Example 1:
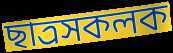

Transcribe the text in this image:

ছাত্ৰসকলক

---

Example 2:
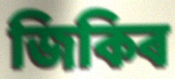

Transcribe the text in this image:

জিকিৰ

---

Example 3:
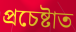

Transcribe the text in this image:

প্ৰচেষ্টাত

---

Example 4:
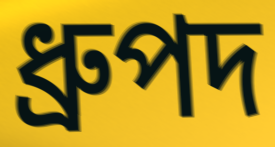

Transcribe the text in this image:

ধ্ৰুপদ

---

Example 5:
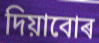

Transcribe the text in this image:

দিয়াবোৰ